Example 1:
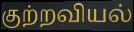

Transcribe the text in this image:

குற்றவியல்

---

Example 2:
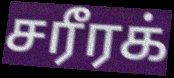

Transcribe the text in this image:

சரீரக்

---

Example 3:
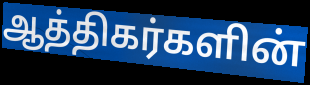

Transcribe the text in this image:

ஆத்திகர்களின்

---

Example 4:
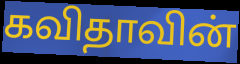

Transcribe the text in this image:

கவிதாவின்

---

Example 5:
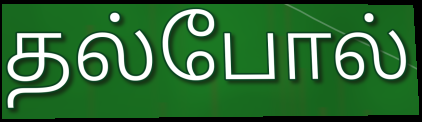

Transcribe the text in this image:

தல்போல்